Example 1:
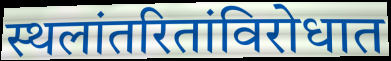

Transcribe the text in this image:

स्थलांतरितांविरोधात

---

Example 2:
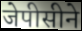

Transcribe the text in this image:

जेपीसीने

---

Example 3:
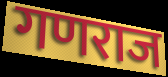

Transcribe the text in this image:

गणराज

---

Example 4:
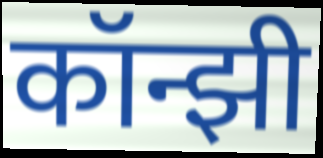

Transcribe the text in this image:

कॉन्झी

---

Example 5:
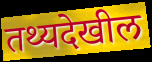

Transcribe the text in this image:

तथ्यदेखील